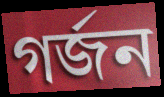
গর্জন